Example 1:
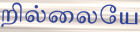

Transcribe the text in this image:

றில்லையே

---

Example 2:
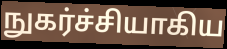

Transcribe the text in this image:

நுகர்ச்சியாகிய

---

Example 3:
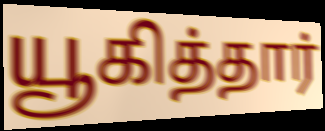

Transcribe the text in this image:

யூகித்தார்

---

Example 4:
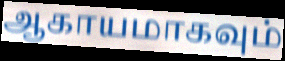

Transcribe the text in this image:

ஆகாயமாகவும்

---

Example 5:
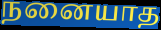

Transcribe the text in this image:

நனையாத